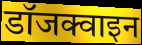
डॉजक्वाइन